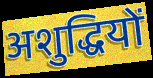
अशुद्धियों